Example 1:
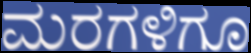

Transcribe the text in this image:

ಮರಗಳಿಗೂ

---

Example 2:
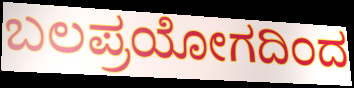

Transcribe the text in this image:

ಬಲಪ್ರಯೋಗದಿಂದ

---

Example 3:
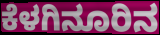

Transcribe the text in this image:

ಕೆಳಗಿನೂರಿನ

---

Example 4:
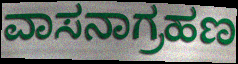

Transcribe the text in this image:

ವಾಸನಾಗ್ರಹಣ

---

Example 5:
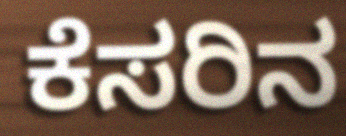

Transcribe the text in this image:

ಕೆಸರಿನ